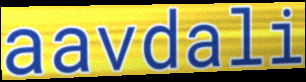
aavdali